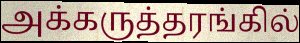
அக்கருத்தரங்கில்